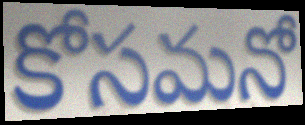
కోసమనో